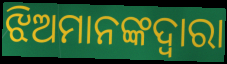
ଝିଅମାନଙ୍କଦ୍ଵାରା